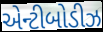
એન્ટીબોડીઝ